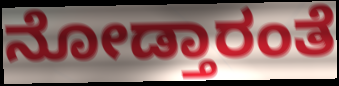
ನೋಡ್ತಾರಂತೆ